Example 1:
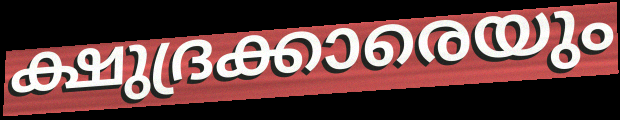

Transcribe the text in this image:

ക്ഷുദ്രക്കാരെയും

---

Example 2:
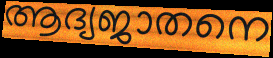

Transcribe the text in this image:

ആദ്യജാതനെ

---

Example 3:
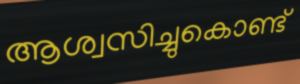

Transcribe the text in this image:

ആശ്വസിച്ചുകൊണ്ട്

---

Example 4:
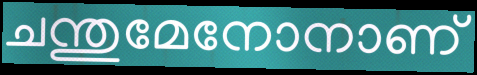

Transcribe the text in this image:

ചന്തുമേനോനാണ്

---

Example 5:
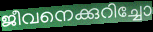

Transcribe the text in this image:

ജീവനെക്കുറിച്ചോ